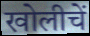
खोलीचें